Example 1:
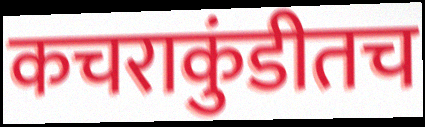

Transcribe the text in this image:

कचराकुंडीतच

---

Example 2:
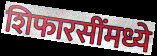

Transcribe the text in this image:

शिफारसींमध्ये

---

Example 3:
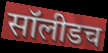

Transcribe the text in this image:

सॉलीडच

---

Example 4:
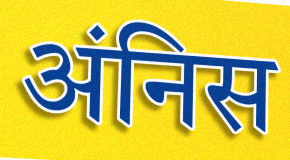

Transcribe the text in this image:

अंनिस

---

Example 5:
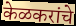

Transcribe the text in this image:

केळकरांचे